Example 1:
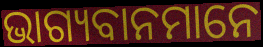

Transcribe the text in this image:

ଭାଗ୍ୟବାନମାନେ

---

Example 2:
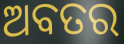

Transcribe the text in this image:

ଅବତର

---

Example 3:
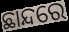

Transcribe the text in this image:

ଛାନ୍ଦରେ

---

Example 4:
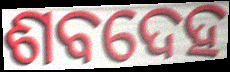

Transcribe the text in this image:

ଶବଦେହ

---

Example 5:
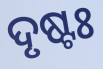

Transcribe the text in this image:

ଦୃଷ୍ଟଃ